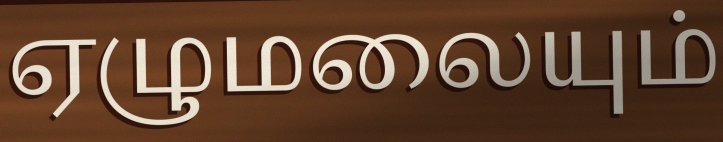
ஏழுமலையும்